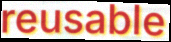
reusable